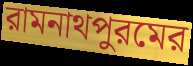
রামনাথপুরমের